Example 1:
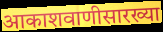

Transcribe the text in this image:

आकाशवाणीसारख्या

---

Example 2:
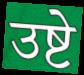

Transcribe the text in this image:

उष्टे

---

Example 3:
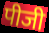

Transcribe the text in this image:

पीजी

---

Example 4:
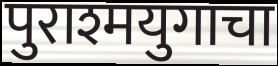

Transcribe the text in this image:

पुराश्मयुगाचा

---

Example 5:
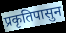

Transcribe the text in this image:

प्रकृतिपासुन